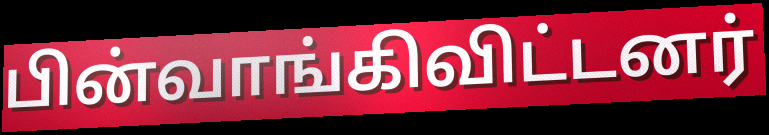
பின்வாங்கிவிட்டனர்